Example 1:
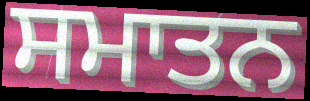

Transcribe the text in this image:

ਸਮਾਤਨ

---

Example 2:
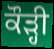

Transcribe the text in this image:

ਕੌੜ੍ਹੀ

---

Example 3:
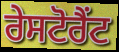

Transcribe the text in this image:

ਰੇਸਟੋਰੈਂਟ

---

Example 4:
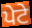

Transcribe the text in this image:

ਪੇਟੇ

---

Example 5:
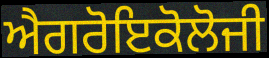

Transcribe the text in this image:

ਐਗਰੋਇਕੋਲੋਜੀ